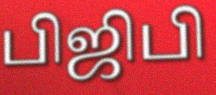
பிஜிபி